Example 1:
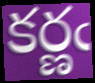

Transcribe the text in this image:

కర్ణఁ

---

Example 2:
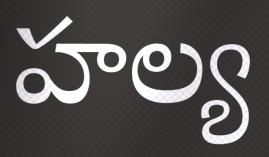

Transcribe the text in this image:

హల్య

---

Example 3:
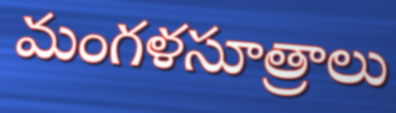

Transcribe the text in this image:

మంగళసూత్రాలు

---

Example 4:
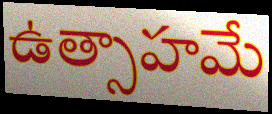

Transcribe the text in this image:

ఉత్సాహమే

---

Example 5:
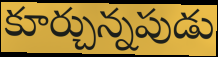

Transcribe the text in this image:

కూర్చున్నపుడు